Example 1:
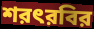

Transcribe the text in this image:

শরৎরবির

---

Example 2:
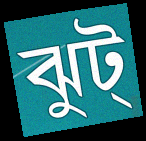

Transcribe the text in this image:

ঝুট্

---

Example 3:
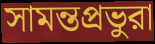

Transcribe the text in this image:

সামন্তপ্রভুরা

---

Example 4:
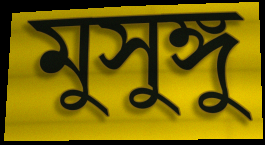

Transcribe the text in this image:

মুসুঙ্গু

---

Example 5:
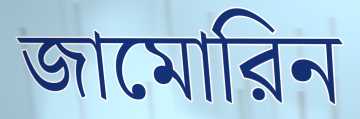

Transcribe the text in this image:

জামোরিন